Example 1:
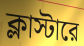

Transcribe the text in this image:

ক্লাস্টারে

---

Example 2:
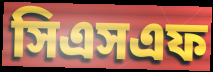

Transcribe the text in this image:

সিএসএফ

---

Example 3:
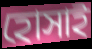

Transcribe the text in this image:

হোসাই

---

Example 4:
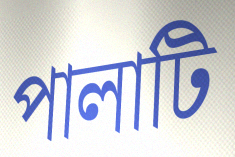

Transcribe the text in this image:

পালাটি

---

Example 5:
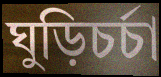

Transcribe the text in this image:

ঘুড়িচর্চা